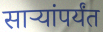
साऱ्यांपर्यंत